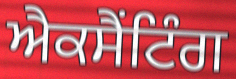
ਐਕਸੈਂਟਿੰਗ